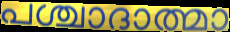
പശ്ചാദാത്മാ